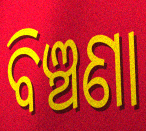
ବିଞ୍ଚଣା